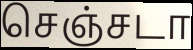
செஞ்சடா